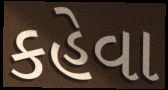
કહેવા